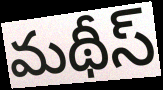
మథీస్